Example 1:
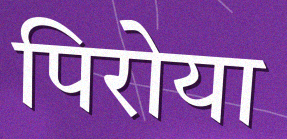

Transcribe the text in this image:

पिरोया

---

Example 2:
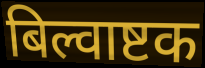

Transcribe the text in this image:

बिल्वाष्टक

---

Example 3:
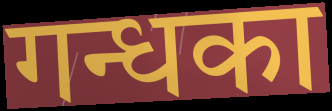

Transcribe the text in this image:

गन्धका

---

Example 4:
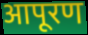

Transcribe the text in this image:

आपूरण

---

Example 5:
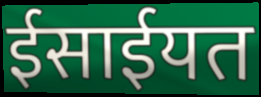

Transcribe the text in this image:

ईसाईयत